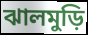
ঝালমুড়ি